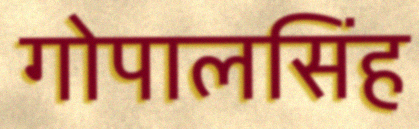
गोपालसिंह